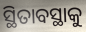
ସ୍ଥିତାବସ୍ଥାକୁ